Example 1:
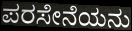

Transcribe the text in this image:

ಪರಸೇನೆಯನು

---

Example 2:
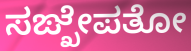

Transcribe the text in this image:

ಸಙ್ಖೇಪತೋ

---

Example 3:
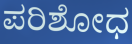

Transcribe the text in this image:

ಪರಿಶೋಧ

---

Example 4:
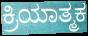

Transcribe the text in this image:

ಕ್ರಿಯಾತ್ಮಕ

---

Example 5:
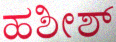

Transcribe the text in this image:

ಹಶೀಶ್